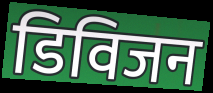
डिविजन